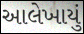
આલેખાયું